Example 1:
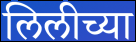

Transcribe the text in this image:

लिलीच्या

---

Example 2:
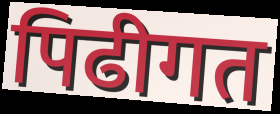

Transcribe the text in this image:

पिढीगत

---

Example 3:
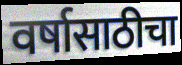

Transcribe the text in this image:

वर्षासाठीचा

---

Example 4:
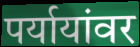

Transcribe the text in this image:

पर्यायांवर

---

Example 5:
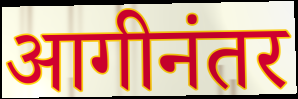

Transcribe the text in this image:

आगीनंतर